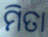
ମିତା